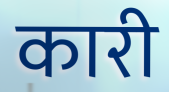
कारी